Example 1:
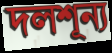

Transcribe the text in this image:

দলশূন্য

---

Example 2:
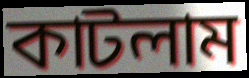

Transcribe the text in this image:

কাটলাম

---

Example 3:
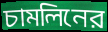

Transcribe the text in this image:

চামলিনের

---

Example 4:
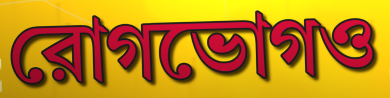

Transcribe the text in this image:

রোগভোগও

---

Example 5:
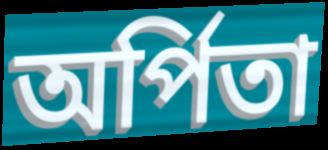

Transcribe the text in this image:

অর্পিতা